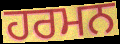
ਹਰਮਨ